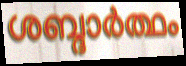
ശബ്ദാർത്ഥം